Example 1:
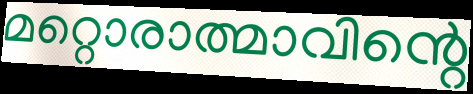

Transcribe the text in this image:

മറ്റൊരാത്മാവിന്റെ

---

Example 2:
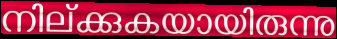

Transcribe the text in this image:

നില്ക്കുകയായിരുന്നു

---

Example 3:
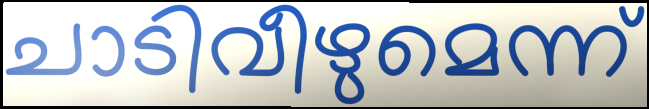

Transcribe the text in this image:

ചാടിവീഴുമെന്ന്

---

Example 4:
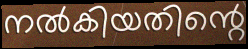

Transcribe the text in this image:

നൽകിയതിന്റെ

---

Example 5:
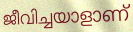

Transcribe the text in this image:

ജീവിച്ചയാളാണ്